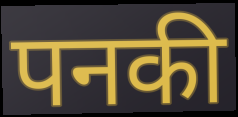
पनकी